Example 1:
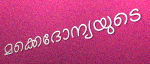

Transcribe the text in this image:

മക്കെദോന്യയുടെ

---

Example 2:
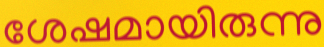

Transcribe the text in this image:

ശേഷമായിരുന്നു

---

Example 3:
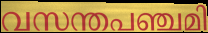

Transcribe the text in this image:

വസന്തപഞ്ചമി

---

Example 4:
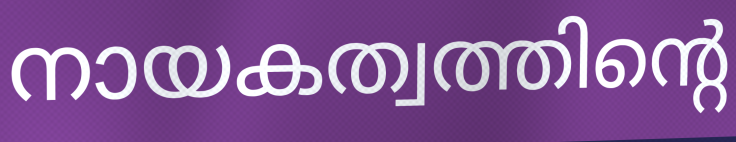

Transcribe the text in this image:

നായകത്വത്തിന്റെ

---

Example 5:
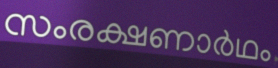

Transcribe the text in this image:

സംരക്ഷണാർഥം